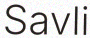
Savli